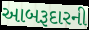
આબરૂદારની